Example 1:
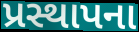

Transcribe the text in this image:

પ્રસ્થાપના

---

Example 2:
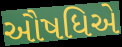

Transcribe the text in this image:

ઔષધિએ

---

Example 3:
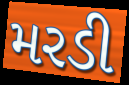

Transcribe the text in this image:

મરડી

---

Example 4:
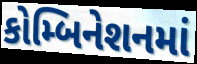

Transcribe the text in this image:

કોમ્બિનેશનમાં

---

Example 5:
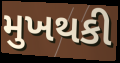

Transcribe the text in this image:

મુખથકી